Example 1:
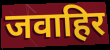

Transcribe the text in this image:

जवाहिर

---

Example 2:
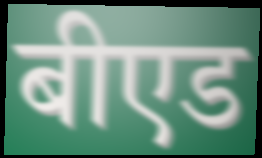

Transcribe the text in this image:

बीएड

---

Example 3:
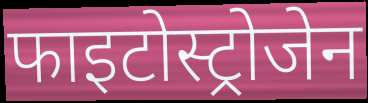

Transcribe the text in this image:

फाइटोस्ट्रोजेन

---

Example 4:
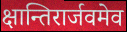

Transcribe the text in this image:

क्षान्तिरार्जवमेव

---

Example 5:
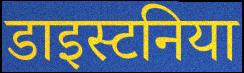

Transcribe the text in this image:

डाइस्टनिया